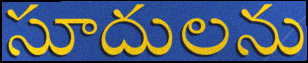
సూదులను